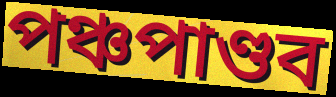
পঞ্চপাণ্ডব